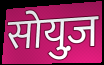
सोयुज़